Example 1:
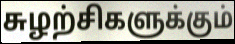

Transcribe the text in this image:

சுழற்சிகளுக்கும்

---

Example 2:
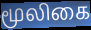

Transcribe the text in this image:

மூலிகை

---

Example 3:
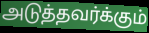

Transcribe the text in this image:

அடுத்தவர்க்கும்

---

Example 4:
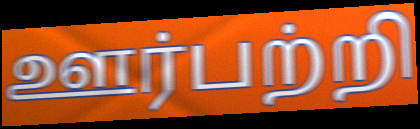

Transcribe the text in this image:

ஊர்பற்றி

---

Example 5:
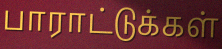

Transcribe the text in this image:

பாராட்டுக்கள்